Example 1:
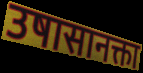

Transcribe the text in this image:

उषासानक्ता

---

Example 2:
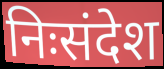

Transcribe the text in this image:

निःसंदेश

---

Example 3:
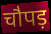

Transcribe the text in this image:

चौपड़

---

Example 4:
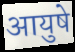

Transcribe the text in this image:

आयुषे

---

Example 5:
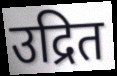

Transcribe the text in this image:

उद्रित